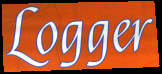
Logger